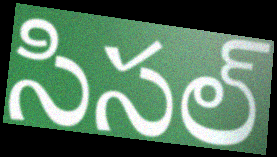
సిసల్